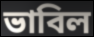
ভাবিল